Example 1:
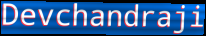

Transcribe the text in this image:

Devchandraji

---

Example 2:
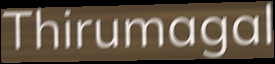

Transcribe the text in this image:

Thirumagal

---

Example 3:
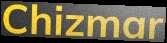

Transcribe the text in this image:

Chizmar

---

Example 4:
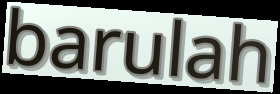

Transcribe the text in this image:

barulah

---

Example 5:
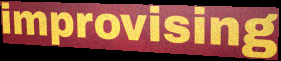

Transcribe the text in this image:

improvising